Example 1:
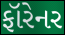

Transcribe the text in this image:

ફૉરેનર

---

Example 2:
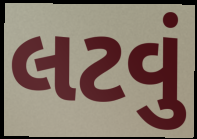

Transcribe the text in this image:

લટવું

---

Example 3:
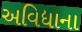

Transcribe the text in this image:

અવિદ્યાના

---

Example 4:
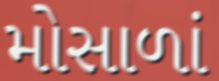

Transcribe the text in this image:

મોસાળાં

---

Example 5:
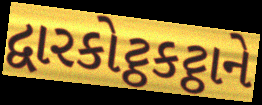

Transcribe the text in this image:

દ્વારકોટ્ઠકટ્ઠાને